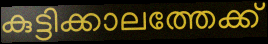
കുട്ടിക്കാലത്തേക്ക്